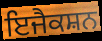
ਇਜੈਕਸ਼ਨ